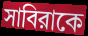
সাবিরাকে